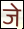
जे